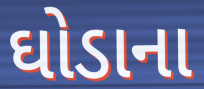
ઘોડાના